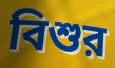
বিশুর